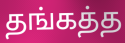
தங்கத்த